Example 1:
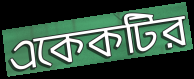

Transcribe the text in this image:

একেকটির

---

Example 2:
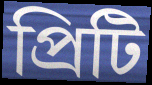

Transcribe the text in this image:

প্রিটি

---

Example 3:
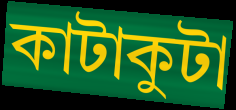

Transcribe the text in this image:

কাটাকুটা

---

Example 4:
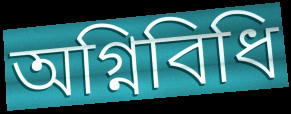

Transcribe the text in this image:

অগ্নিবিধি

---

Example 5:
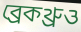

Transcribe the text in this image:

ব্রেকথ্রুও